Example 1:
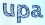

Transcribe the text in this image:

upa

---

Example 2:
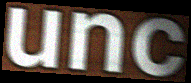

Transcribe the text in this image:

unc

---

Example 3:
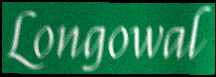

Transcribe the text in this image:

Longowal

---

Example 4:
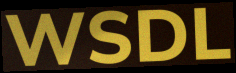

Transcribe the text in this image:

WSDL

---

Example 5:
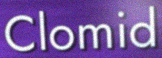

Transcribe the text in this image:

Clomid